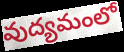
వుద్యమంలో